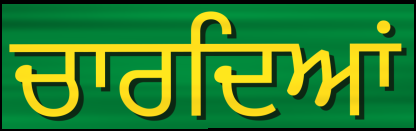
ਚਾਰਦਿਆਂ